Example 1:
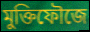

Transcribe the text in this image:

মুক্তিফৌজে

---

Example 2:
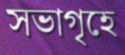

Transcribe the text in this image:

সভাগৃহে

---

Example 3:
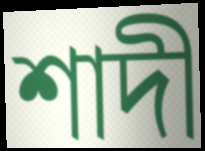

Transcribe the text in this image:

শাদী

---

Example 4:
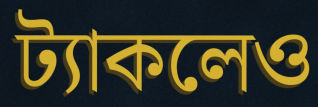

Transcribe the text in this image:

ট্যাকলেও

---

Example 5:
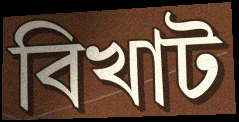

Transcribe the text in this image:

বিখাট